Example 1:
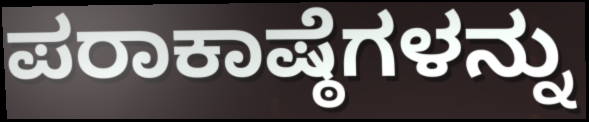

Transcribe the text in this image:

ಪರಾಕಾಷ್ಠೆಗಳನ್ನು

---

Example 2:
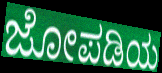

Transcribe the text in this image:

ಜೋಪಡಿಯ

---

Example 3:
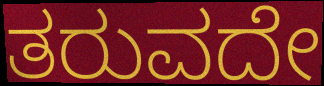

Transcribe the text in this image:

ತರುವದೇ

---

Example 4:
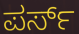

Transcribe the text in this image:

ಪರ್ಸ್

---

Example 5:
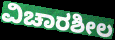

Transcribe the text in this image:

ವಿಚಾರಶೀಲ